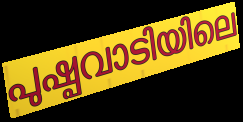
പുഷ്പവാടിയിലെ